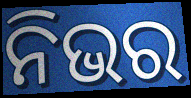
ନିଭର